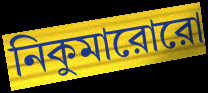
নিকুমারোরো